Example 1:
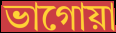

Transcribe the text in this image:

ভাগোয়া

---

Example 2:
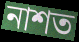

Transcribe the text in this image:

নাশত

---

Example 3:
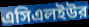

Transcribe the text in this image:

এসিএলইউর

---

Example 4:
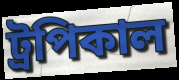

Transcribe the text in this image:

ট্রপিকাল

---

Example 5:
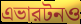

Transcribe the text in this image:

এভারটনও